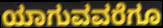
ಯಾಗುವವರೆಗೂ